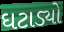
ઘટાડ્યો